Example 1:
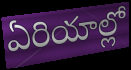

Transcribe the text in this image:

ఏరియాల్లో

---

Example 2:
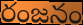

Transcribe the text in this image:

రంజనం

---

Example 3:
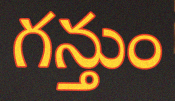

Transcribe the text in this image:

గన్తుం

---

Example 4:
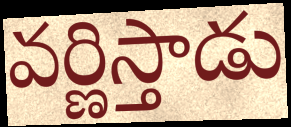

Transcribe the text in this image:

వర్ణిస్తాడు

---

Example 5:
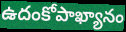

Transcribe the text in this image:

ఉదంకోపాఖ్యానం